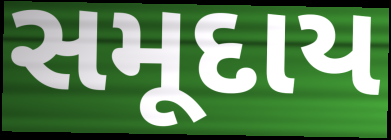
સમૂદાય